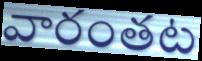
వారంతట